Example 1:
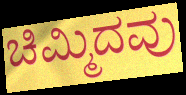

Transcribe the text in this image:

ಚಿಮ್ಮಿದವು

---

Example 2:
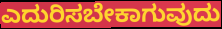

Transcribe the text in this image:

ಎದುರಿಸಬೇಕಾಗುವುದು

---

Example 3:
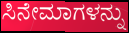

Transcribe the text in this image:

ಸಿನೇಮಾಗಳನ್ನು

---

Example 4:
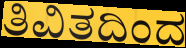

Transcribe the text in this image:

ತಿವಿತದಿಂದ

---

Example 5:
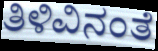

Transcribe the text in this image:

ತಿಳಿವಿನಂತೆ